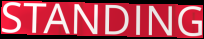
STANDING